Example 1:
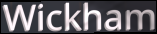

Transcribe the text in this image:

Wickham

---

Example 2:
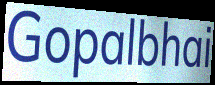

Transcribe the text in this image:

Gopalbhai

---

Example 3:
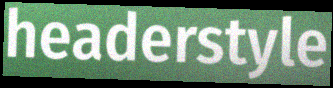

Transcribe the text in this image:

headerstyle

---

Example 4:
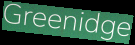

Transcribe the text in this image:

Greenidge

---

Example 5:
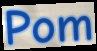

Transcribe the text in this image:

Pom